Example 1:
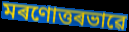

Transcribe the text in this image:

মৰণোত্তৰভাৱে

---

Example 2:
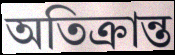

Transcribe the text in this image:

অতিক্ৰান্ত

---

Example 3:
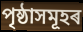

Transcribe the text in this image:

পৃষ্ঠাসমূহৰ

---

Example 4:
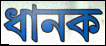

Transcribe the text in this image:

ধানক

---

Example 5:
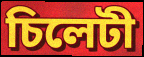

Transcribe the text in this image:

চিলেটী